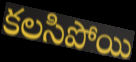
కలసిపోయి